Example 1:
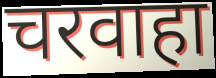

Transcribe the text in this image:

चरवाहा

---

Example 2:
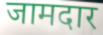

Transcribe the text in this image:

जामदार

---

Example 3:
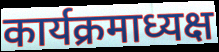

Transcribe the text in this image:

कार्यक्रमाध्यक्ष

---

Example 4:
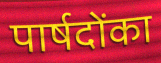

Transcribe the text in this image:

पार्षदोंका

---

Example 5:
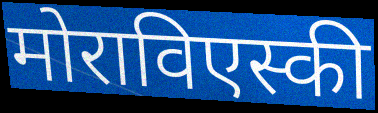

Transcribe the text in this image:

मोराविएस्की